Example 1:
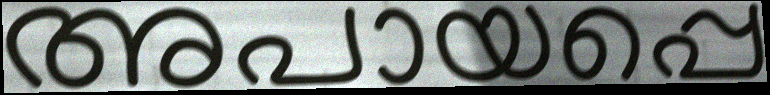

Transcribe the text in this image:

അപായപ്പെ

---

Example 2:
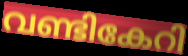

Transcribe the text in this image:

വണ്ടികേറി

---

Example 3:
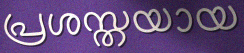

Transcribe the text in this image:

പ്രശസ്തയായ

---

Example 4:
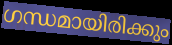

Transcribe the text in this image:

ഗന്ധമായിരിക്കും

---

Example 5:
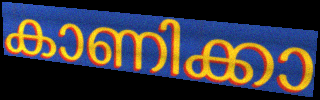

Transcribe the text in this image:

കാണിക്കാ